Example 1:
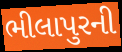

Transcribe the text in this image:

ભીલાપુરની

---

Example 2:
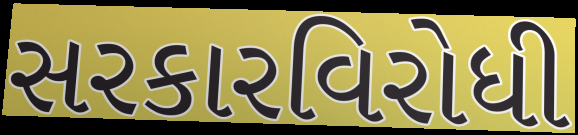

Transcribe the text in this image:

સરકારવિરોધી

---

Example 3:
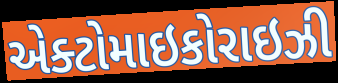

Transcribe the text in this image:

એક્ટોમાઇકોરાઇઝી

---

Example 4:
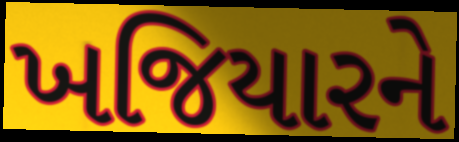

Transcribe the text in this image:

ખજિયારને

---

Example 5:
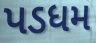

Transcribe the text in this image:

પડધમ